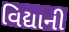
વિદ્યાની